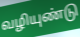
வழியுண்டு